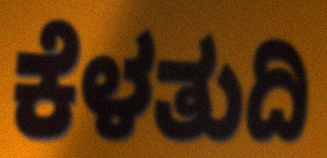
ಕೆಳತುದಿ